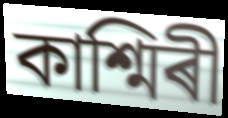
কাশ্মিৰী